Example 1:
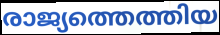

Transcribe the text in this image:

രാജ്യത്തെത്തിയ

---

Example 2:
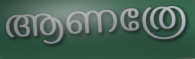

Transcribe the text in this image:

ആണത്രേ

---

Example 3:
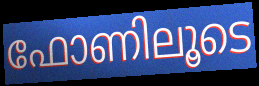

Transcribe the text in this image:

ഫോണിലൂടെ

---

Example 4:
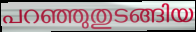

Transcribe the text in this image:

പറഞ്ഞുതുടങ്ങിയ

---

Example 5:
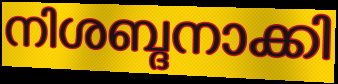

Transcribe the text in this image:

നിശബ്ദനാക്കി